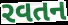
રવતન